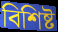
বিশিষ্ট